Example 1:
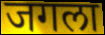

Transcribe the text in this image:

जगला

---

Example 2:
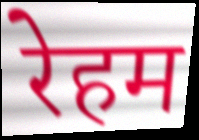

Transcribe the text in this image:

रेहम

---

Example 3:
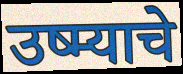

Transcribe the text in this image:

उष्म्याचे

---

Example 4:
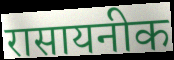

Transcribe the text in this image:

रासायनीक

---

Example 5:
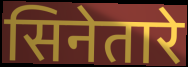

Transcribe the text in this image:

सिनेतारे